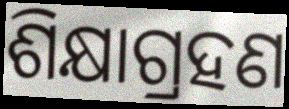
ଶିକ୍ଷାଗ୍ରହଣ